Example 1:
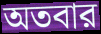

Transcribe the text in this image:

অতবার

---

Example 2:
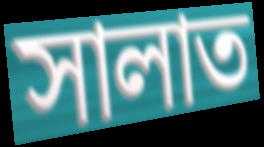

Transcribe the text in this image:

সালাত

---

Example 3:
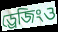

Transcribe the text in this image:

ড্রেজিংও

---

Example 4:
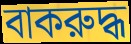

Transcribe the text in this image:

বাকরুদ্ধ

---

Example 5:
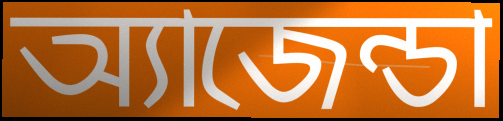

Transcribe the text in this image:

অ্যাজেন্ডা